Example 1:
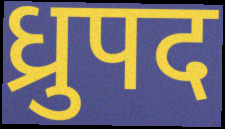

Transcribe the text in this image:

ध्रुपद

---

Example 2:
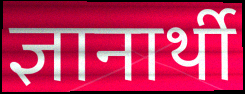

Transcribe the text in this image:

ज्ञानार्थी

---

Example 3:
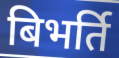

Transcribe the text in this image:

बिभर्ति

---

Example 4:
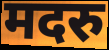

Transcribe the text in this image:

मदरु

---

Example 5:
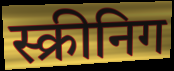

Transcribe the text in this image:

स्क्रीनिग